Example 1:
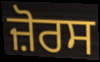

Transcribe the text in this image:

ਜ਼ੋਰਸ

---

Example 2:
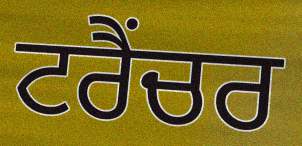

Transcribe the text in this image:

ਟਰੈਂਚਰ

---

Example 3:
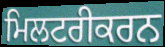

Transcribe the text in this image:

ਮਿਲਟਰੀਕਰਨ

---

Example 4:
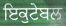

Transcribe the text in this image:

ਇਕੁਟੇਬਲ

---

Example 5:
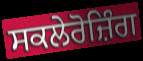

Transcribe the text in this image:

ਸਕਲੇਰੋਜ਼ਿੰਗ